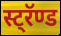
स्ट्रॅण्ड